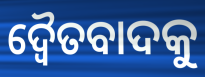
ଦ୍ୱୈତବାଦକୁ